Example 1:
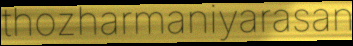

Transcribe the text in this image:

thozharmaniyarasan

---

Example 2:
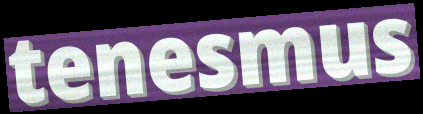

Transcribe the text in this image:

tenesmus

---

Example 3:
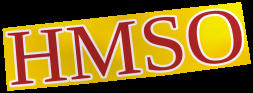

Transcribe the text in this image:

HMSO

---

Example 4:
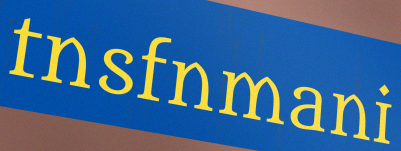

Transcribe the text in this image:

tnsfnmani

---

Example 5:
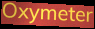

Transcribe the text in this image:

Oxymeter